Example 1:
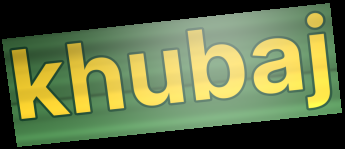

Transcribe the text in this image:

khubaj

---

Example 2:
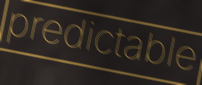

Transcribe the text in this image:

predictable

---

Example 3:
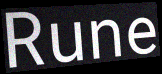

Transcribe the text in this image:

Rune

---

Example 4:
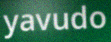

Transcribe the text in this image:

yavudo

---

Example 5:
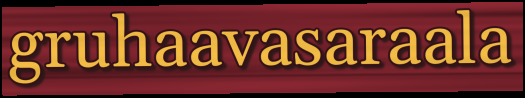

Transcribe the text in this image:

gruhaavasaraala